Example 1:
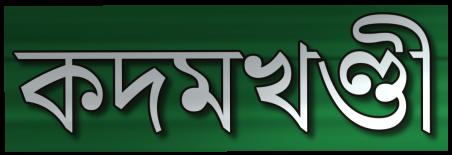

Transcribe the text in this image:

কদমখণ্ডী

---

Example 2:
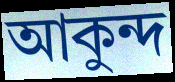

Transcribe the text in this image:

আকুন্দ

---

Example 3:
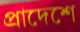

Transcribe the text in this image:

প্রাদেশে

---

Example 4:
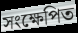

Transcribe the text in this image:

সংক্ষেপিত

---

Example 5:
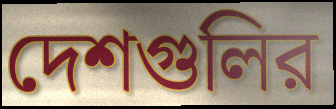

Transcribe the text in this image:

দেশগুলির